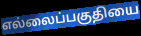
எல்லைப்பகுதியை